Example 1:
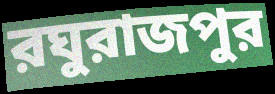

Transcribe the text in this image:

রঘুরাজপুর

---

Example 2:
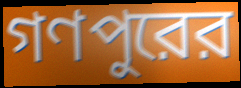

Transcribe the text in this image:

গণপুরের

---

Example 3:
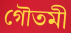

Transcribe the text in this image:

গৌতমী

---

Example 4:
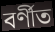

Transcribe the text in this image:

বর্ণীত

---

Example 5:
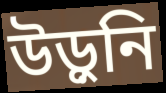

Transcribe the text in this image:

উড়ুনি